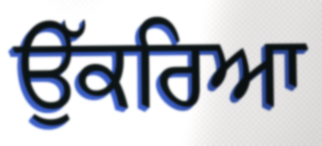
ਉੱਕਰਿਆ